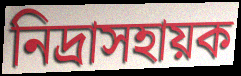
নিদ্রাসহায়ক